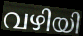
വഴിയി